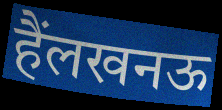
हैंलखनऊ